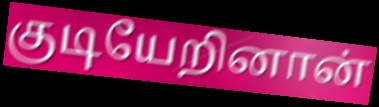
குடியேறினான்